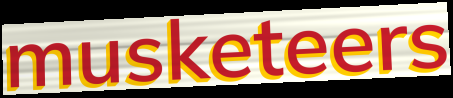
musketeers